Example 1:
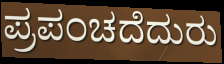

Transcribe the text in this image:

ಪ್ರಪಂಚದೆದುರು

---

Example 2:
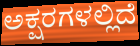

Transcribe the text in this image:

ಅಕ್ಷರಗಳಲ್ಲಿದೆ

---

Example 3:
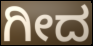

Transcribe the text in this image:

ಗೀದ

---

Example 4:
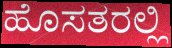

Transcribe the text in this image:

ಹೊಸತರಲ್ಲಿ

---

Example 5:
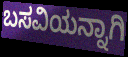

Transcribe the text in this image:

ಬಸವಿಯನ್ನಾಗಿ